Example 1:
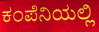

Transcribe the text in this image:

ಕಂಪೆನಿಯಲ್ಲಿ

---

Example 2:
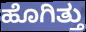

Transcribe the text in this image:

ಹೊಗಿತ್ತು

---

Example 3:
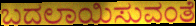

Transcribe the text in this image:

ಬದಲಾಯಿಸುವಂತೆ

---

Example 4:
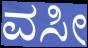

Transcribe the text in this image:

ವಸೀ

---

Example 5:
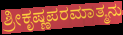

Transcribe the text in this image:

ಶ್ರೀಕೃಷ್ಣಪರಮಾತ್ಮನು